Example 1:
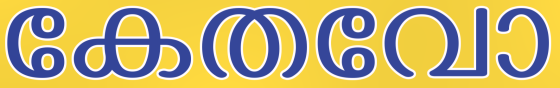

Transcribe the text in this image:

കേതവോ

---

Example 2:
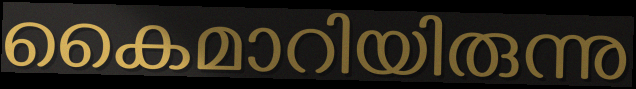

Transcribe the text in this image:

കൈമാറിയിരുന്നു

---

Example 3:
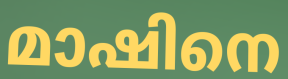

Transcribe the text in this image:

മാഷിനെ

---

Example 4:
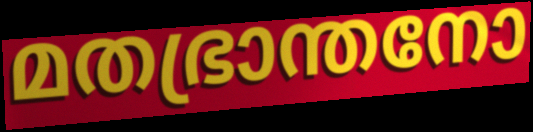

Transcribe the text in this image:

മതഭ്രാന്തനോ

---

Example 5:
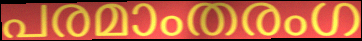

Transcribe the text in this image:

പരമാംതരംഗ